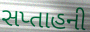
સપ્તાહની